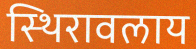
स्थिरावलाय